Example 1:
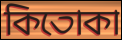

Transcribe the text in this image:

কিতোকা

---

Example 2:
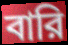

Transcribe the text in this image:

বারি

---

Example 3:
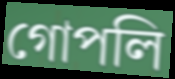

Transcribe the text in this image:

গোপলি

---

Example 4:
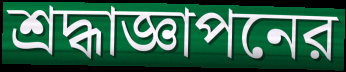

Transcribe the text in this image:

শ্রদ্ধাজ্ঞাপনের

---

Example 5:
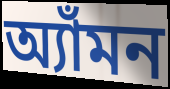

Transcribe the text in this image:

অ্যাঁমন